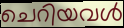
ചെറിയവൾ